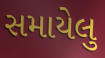
સમાયેલુ